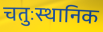
चतुःस्थानिक